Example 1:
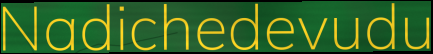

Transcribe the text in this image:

Nadichedevudu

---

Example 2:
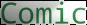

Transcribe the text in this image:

Comic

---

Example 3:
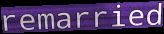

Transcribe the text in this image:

remarried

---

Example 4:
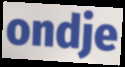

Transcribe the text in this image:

ondje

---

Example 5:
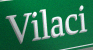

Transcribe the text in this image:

Vilaci